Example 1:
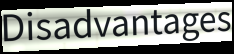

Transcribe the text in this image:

Disadvantages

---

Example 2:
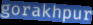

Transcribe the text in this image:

gorakhpur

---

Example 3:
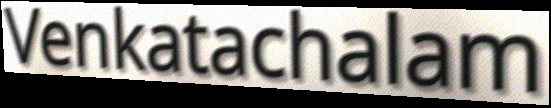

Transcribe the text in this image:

Venkatachalam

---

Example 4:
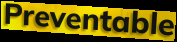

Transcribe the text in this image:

Preventable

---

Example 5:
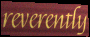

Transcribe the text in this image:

reverently